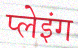
प्लेइंग